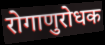
रोगाणुरोधक